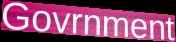
Govrnment